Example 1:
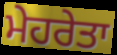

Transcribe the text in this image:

ਮੇਹਰੇਤਾ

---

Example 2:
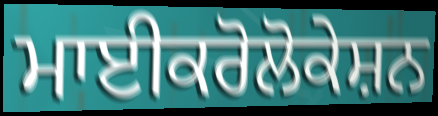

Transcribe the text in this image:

ਮਾਈਕਰੋਲੋਕੇਸ਼ਨ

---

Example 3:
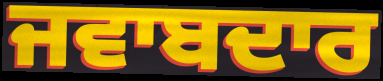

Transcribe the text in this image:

ਜਵਾਬਦਾਰ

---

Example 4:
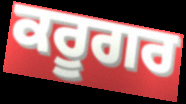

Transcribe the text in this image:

ਕਰੂਗਰ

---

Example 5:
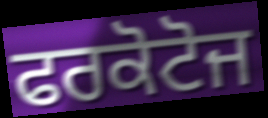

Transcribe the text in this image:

ਫਰਕੋਟੋਜ